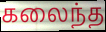
கலைந்த